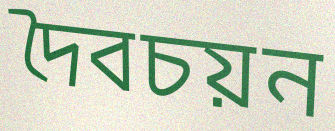
দৈবচয়ন